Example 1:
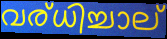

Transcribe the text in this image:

വര്ധിച്ചാല്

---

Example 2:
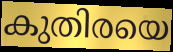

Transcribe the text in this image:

കുതിരയെ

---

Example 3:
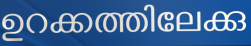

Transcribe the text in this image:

ഉറക്കത്തിലേക്കു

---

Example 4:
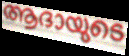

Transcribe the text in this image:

ആദായുടെ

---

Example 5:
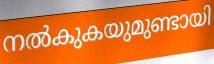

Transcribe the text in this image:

നൽകുകയുമുണ്ടായി